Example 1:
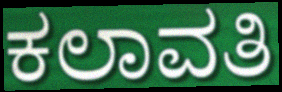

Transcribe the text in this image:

ಕಲಾವತಿ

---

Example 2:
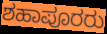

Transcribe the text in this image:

ಶಹಾಪೂರರು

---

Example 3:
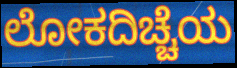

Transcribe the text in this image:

ಲೋಕದಿಚ್ಚೆಯ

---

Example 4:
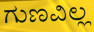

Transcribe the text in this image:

ಗುಣವಿಲ್ಲ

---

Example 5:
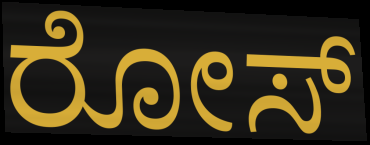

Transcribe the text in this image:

ರೋಸ್